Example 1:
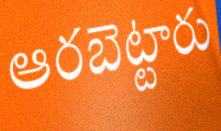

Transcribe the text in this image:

ఆరబెట్టారు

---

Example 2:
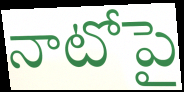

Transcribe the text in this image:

నాటోపై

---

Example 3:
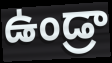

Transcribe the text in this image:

ఉండ్రా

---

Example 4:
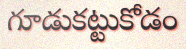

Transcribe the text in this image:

గూడుకట్టుకోడం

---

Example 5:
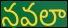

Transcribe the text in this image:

నవలా